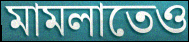
মামলাতেও